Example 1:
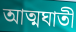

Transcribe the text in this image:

আত্মঘাতী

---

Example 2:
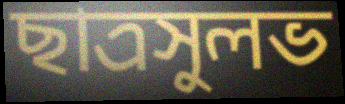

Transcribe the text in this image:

ছাত্রসুলভ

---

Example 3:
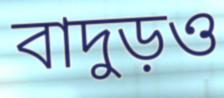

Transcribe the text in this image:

বাদুড়ও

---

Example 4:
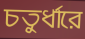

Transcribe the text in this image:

চতুর্ধারে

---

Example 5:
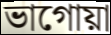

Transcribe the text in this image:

ভাগোয়া